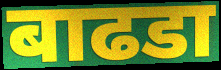
बाढडा